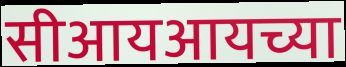
सीआयआयच्या